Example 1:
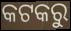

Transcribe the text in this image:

କଟକରୁ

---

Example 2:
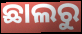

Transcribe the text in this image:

ଛାଲରୁ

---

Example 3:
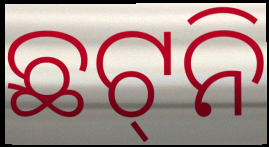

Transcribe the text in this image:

ଛଟ୍‌ନି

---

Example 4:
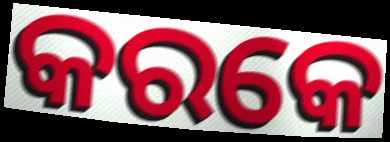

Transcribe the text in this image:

କରକେ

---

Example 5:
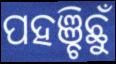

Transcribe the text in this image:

ପହଞ୍ଚିଛୁଁ